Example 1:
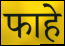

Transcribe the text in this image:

फाहे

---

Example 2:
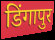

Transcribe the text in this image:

डिंगापुर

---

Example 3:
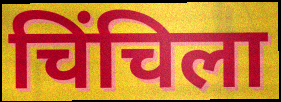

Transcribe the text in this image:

चिंचिला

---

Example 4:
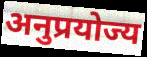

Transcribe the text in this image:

अनुप्रयोज्य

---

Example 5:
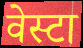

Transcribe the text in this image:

वेस्टा